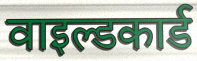
वाइल्डकार्ड